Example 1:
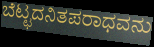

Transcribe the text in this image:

ಬೆಟ್ಟದನಿತಪರಾಧವನು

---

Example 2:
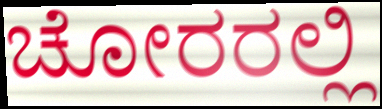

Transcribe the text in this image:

ಚೋರರಲ್ಲಿ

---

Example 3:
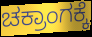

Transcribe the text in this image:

ಚಕ್ರಾಂಗಕ್ಕೆ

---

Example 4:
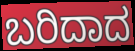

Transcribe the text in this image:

ಬರಿದಾದ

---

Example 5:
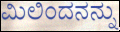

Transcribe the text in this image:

ಮಿಲಿಂದನನ್ನು